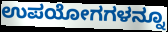
ಉಪಯೋಗಗಳನ್ನೂ